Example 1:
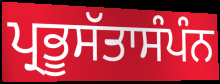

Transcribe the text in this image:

ਪ੍ਰਭੂਸੱਤਾਸੰਪੰਨ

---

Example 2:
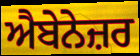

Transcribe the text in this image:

ਐਬੇਨੇਜ਼ਰ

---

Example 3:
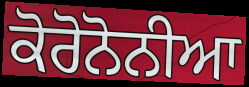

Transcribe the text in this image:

ਕੋਰੋਨੋਨੀਆ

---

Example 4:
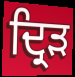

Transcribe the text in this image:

ਦ੍ਰਿੜ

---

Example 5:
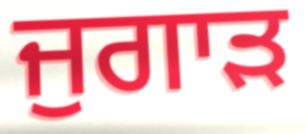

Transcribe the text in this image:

ਜੁਗਾੜ